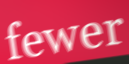
fewer